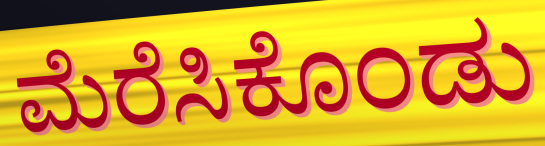
ಮೆರೆಸಿಕೊಂಡು